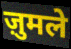
ज़ुमले